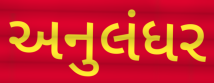
અનુલંધર